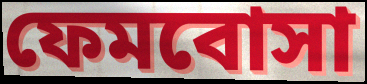
ফেমবোসা